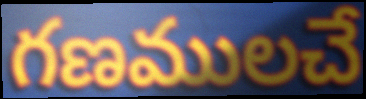
గణములచే